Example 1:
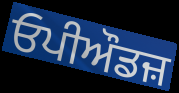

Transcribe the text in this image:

ਓਪੀਔਡਜ਼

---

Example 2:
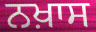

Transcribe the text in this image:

ਨਖ਼ਾਸ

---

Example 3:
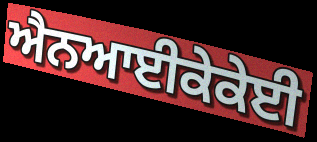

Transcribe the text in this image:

ਐਨਆਈਕੇਕੇਈ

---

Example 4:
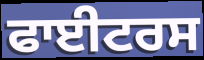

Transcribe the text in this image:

ਫਾਈਟਰਸ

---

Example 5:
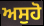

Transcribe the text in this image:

ਅਸੁਹੋ